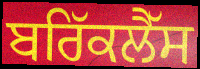
ਬਰਿੱਕਲੈੱਸ